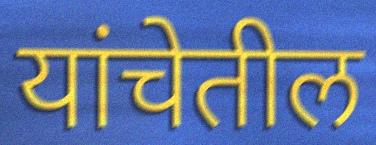
यांचेतील